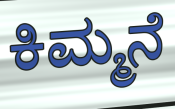
ಕಿಮ್ಮನೆ